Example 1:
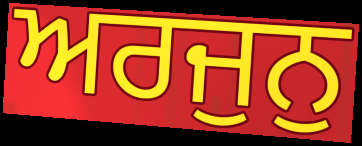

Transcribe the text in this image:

ਅਰਜੁਨੁ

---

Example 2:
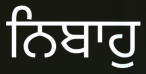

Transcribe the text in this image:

ਨਿਬਾਹੁ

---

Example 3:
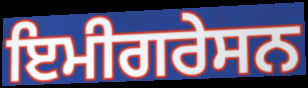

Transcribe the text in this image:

ਇਮੀਗਰੇਸਨ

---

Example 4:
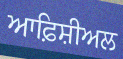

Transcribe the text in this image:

ਆਫ਼ਿਸ਼ੀਅਲ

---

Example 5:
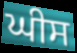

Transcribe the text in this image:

ਘੀਸ